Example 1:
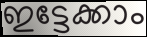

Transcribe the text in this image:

ഇട്ടേക്കാം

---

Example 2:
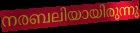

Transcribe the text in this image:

നരബലിയായിരുന്നു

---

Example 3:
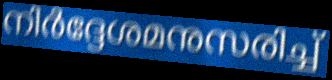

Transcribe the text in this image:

നിർദ്ദേശമനുസരിച്ച്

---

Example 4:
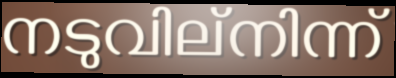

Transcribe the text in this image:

നടുവില്നിന്ന്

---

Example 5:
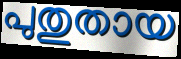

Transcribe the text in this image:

പുതുതായ